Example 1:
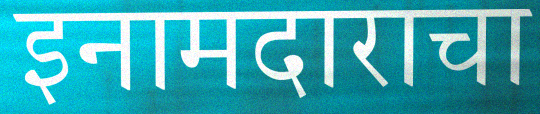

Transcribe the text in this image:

इनामदाराचा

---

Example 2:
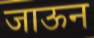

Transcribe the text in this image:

जाऊन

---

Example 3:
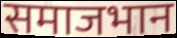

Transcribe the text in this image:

समाजभान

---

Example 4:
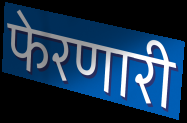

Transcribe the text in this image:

फेरणारी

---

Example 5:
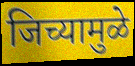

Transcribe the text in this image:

जिच्यामुळे